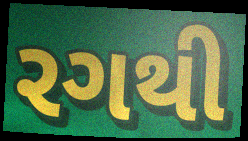
રગથી